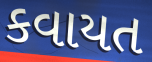
કવાયત